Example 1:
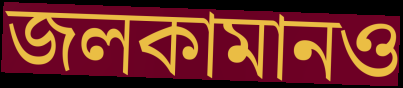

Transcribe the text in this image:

জলকামানও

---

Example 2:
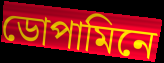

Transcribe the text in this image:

ডোপামিনে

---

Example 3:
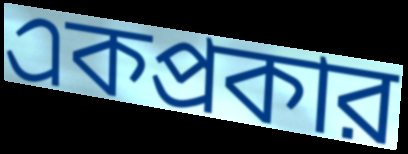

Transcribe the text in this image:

একপ্রকার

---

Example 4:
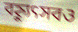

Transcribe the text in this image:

বহ্ন্যুৎসবও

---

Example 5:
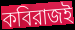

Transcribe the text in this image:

কবিরাজই